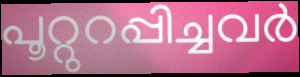
പൂറ്റുറപ്പിച്ചവർ